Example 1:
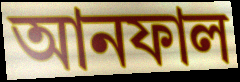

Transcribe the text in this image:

আনফাল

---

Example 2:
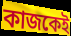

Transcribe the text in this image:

কাজকেই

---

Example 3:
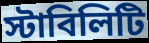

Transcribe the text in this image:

স্টাবিলিটি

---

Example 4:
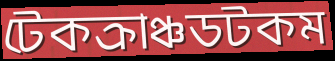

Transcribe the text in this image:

টেকক্রাঞ্চডটকম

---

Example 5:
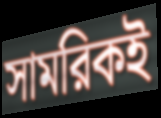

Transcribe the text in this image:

সামরিকই